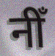
नीँ